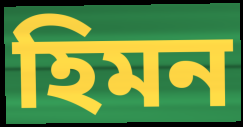
হিমন